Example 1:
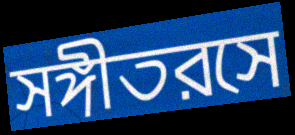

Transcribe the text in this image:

সঙ্গীতরসে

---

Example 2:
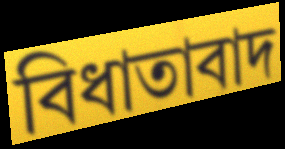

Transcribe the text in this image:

বিধাতাবাদ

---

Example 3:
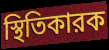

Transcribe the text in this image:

স্থিতিকারক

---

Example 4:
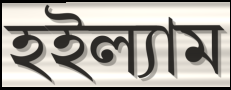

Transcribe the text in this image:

হইল্যাম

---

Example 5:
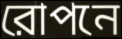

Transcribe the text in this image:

রোপনে